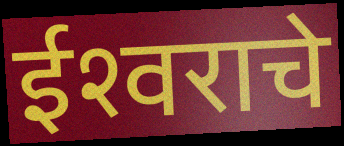
ईश्वराचे